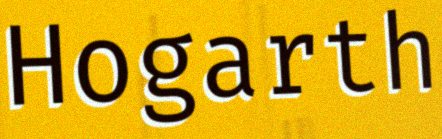
Hogarth